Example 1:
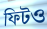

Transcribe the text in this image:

ফিটও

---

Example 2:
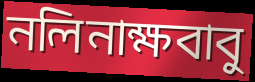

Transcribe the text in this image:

নলিনাক্ষবাবু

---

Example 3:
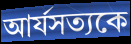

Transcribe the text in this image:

আর্যসত্যকে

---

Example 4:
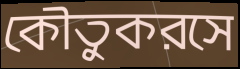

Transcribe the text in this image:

কৌতুকরসে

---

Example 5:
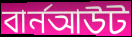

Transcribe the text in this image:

বার্নআউট